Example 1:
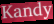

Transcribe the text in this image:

Kandy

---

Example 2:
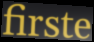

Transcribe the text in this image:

firste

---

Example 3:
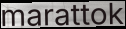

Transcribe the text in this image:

marattok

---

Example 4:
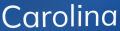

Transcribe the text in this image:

Carolina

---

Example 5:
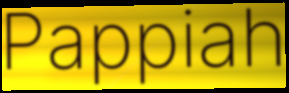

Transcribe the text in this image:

Pappiah